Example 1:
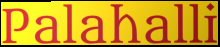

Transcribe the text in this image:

Palahalli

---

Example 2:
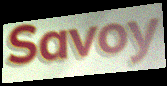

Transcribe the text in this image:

Savoy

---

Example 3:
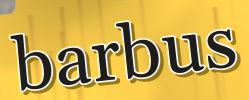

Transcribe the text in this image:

barbus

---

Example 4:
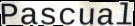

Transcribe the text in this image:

Pascual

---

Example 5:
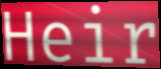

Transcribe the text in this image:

Heir